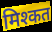
मिश्कत